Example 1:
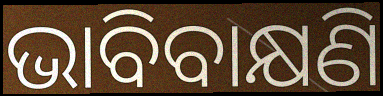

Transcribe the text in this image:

ଭାବିବାକ୍ଷଣି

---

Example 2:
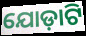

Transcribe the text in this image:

ଯୋଡ଼ାଟି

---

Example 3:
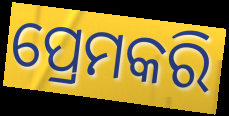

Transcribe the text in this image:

ପ୍ରେମକରି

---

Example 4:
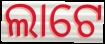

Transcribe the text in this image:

ଲାଟେ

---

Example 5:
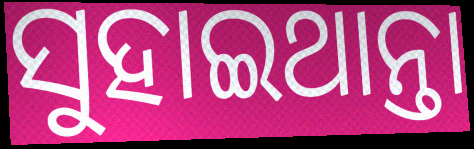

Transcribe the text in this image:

ସୁହାଇଥାନ୍ତା